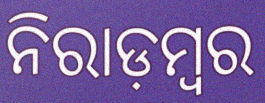
ନିରାଡ଼ମ୍ବର